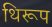
थिरूप